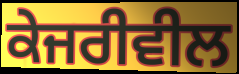
ਕੇਜਰੀਵੀਲ